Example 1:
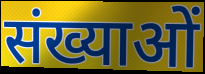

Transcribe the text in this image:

संख्याओं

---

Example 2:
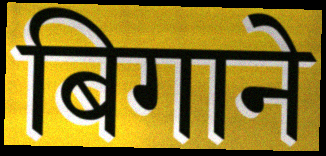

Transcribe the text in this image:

बिगाने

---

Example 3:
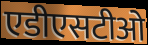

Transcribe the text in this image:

एडीएसटीओ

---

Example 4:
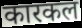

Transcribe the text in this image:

कारकल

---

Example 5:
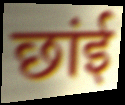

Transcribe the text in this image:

छांई